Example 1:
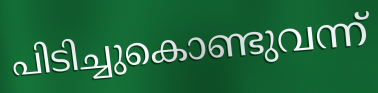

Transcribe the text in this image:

പിടിച്ചുകൊണ്ടുവന്ന്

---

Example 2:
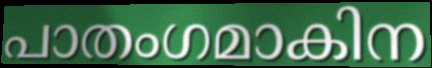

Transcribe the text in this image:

പാതംഗമാകിന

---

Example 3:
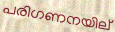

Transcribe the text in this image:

പരിഗണനയില്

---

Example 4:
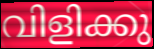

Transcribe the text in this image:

വിളിക്കു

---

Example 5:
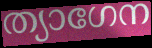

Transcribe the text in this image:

ത്യാഗേന